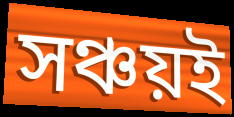
সঞ্চয়ই